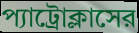
প্যাট্রোক্লাসের